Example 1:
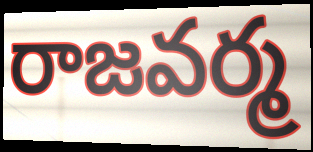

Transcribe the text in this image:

రాజవర్మ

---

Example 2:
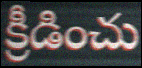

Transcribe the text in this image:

క్రీడించు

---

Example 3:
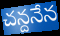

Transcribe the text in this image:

చన్దనేన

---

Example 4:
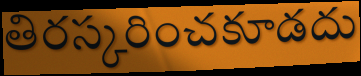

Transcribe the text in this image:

తిరస్కరించకూడదు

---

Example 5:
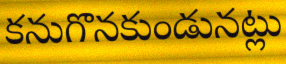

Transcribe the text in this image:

కనుగొనకుండునట్లు